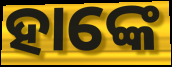
ହାଙ୍କେ